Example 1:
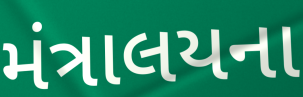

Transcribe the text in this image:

મંત્રાલયના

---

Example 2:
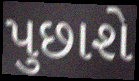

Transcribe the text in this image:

પુછાશે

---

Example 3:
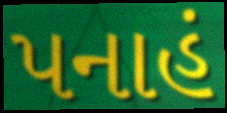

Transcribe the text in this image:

પનાહં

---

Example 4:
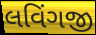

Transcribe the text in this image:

લવિંગજી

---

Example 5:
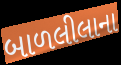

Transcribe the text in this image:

બાળલીલાના